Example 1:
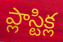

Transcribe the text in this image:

ప్లాస్టిక్ల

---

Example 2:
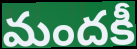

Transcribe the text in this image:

మందకీ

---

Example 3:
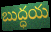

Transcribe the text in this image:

బుద్ధయ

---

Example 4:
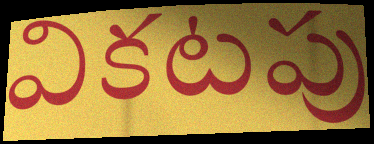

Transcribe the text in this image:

వికటపు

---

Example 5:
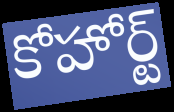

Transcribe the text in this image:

కోహోర్ట్